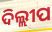
ଦିଲ୍ଲୀପ